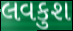
લવકુશ